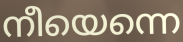
നീയെന്നെ